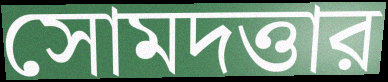
সোমদত্তার